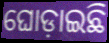
ଘୋଡ଼ାଇଛି